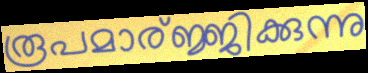
രൂപമാര്ജ്ജിക്കുന്നു